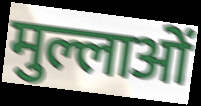
मुल्लाओं